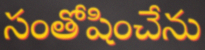
సంతోషించేను